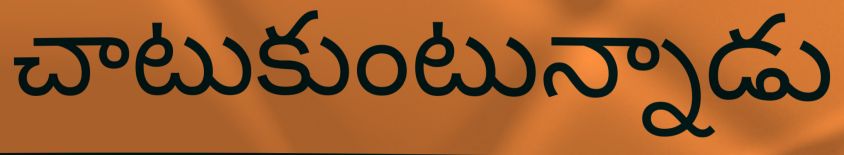
చాటుకుంటున్నాడు